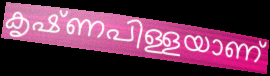
കൃഷ്‌ണപിള്ളയാണ്